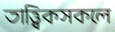
তাত্ত্বিকসকলে